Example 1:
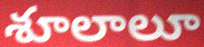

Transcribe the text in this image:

శూలాలూ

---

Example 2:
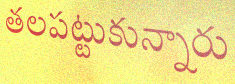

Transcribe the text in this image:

తలపట్టుకున్నారు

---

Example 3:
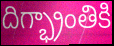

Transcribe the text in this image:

దిగ్భ్రాంతికి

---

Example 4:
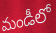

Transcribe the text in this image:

మండీలో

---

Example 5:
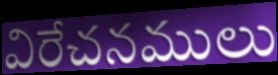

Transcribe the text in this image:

విరేచనములు